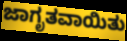
ಜಾಗೃತವಾಯಿತು